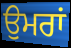
ਉੁਮਰਾਂ